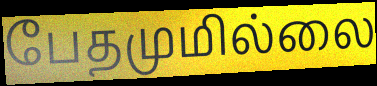
பேதமுமில்லை